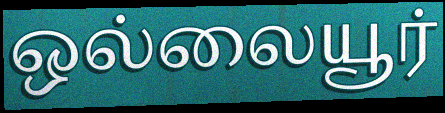
ஒல்லையூர்